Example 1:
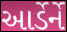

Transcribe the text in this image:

આર્ડેર્ને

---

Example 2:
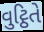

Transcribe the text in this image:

વુટ્ઠિતે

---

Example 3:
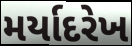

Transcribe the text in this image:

મર્યાદરેખ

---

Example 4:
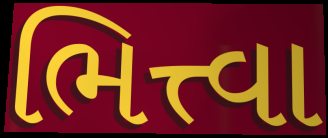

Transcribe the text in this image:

ભિત્ત્વા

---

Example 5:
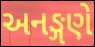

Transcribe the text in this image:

અનઙ્ગણે